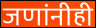
जणांनीही